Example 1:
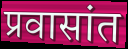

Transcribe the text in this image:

प्रवासांत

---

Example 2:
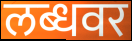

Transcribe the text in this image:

लब्धवर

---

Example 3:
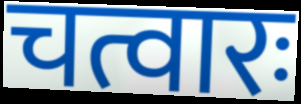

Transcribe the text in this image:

चत्वारः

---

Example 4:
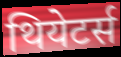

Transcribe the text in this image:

थियेटर्स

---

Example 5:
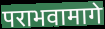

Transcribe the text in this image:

पराभवामागे